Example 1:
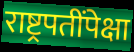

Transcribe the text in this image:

राष्ट्रपतींपेक्षा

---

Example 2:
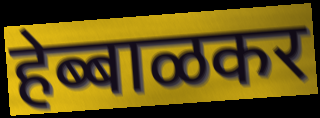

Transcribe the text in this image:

हेब्बाळकर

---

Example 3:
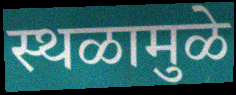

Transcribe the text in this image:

स्थळामुळे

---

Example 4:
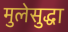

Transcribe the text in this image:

मुलेसुद्धा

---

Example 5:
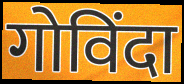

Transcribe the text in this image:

गोविंदा